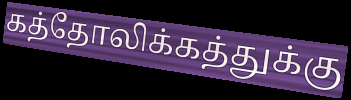
கத்தோலிக்கத்துக்கு